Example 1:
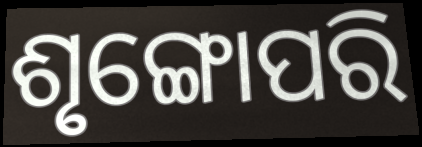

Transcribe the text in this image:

ଶୃଙ୍ଗୋପରି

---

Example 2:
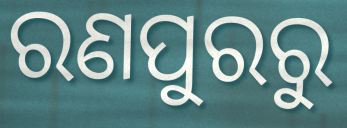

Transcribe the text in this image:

ରଣପୁରରୁ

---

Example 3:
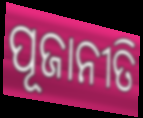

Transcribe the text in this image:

ପୂଜାନୀତି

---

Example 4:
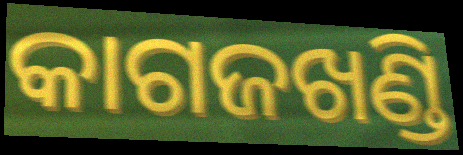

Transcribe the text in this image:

କାଗଜଖଣ୍ଡି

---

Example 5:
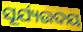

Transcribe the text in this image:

ସୂର୍ଯ୍ୟଉଦୟ